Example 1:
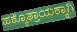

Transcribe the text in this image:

ಹಕ್ಕೊತ್ತಾಯಕ್ಕಾಗಿ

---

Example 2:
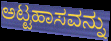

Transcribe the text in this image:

ಅಟ್ಟಹಾಸವನ್ನು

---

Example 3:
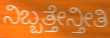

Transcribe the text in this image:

ನಿಬ್ಬತ್ತೇನ್ತೀತಿ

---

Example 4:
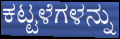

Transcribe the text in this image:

ಕಟ್ಟಳೆಗಳನ್ನು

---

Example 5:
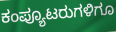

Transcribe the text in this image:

ಕಂಪ್ಯೂಟರುಗಳಿಗೂ